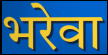
भरेवा